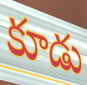
కూడు